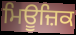
ਮਿਊਜ਼ਿਕ